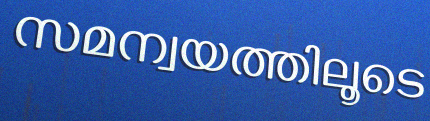
സമന്വയത്തിലൂടെ